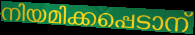
നിയമിക്കപ്പെടാന്